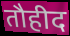
तौहीद